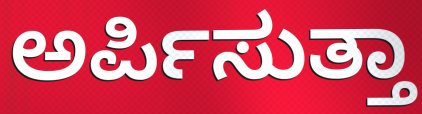
ಅರ್ಪಿಸುತ್ತಾ